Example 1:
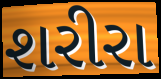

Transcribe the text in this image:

શરીરા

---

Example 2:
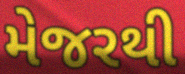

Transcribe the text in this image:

મેજરથી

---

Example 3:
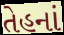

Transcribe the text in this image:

તેહનાં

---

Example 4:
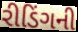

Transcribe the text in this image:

રીડિંગની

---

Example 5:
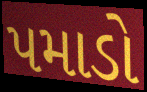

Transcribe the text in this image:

પમાડો